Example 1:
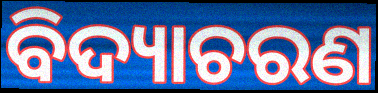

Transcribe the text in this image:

ବିଦ୍ୟାଚରଣ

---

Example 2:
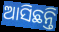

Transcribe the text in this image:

ଆସିଛନ୍ତି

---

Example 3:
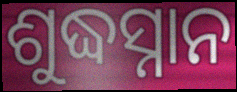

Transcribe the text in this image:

ଶୁଦ୍ଧସ୍ନାନ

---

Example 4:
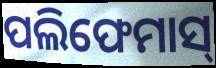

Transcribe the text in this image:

ପଲିଫେମାସ୍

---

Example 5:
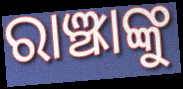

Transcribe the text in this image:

ରାଞ୍ଝାଙ୍କୁ